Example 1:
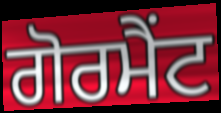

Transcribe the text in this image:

ਗੋਰਮੈਂਟ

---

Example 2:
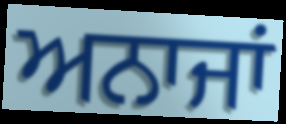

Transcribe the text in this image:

ਅਨਾਜਾਂ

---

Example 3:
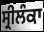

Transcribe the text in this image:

ਸ੍ਰੀਲੰਕਾ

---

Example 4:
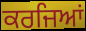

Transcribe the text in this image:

ਕਰਜਿਆਂ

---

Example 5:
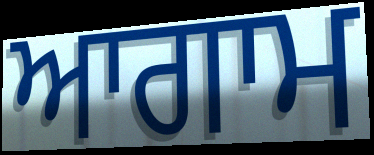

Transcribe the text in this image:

ਆਗਾਮ